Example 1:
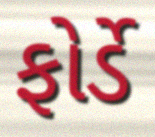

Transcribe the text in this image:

ફોર્ડે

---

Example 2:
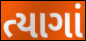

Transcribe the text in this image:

ત્યાગાં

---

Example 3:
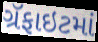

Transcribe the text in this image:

ગ્રૅફાઇટમાં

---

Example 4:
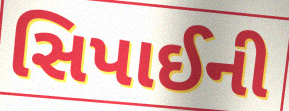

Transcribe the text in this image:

સિપાઈની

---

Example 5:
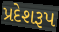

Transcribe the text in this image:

પ્રદેશરૂપ